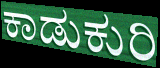
ಕಾಡುಕುರಿ